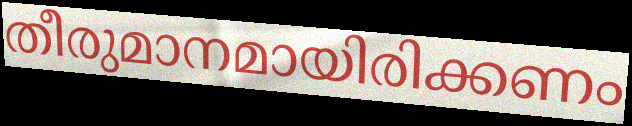
തീരുമാനമായിരിക്കണം